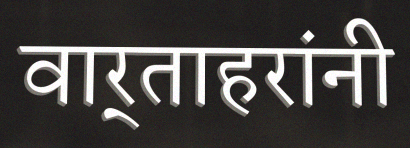
वार्ताहरांनी